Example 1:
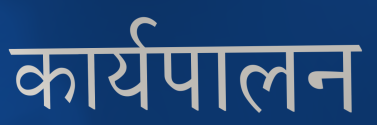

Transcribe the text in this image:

कार्यपालन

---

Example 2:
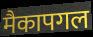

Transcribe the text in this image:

मैकापगल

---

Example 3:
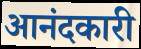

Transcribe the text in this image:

आनंदकारी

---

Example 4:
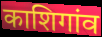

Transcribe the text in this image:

काशिगांव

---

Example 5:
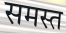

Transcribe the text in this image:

समस्त